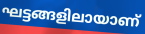
ഘട്ടങ്ങളിലായാണ്